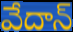
వేదాన్